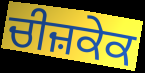
ਚੀਜ਼ਕੇਕ